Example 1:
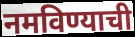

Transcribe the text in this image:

नमविण्याची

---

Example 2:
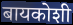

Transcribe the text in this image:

बायकोशी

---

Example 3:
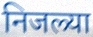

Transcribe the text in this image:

निजल्या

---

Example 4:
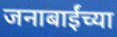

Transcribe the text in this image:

जनाबाईंच्या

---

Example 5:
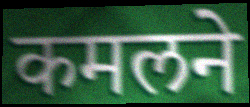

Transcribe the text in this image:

कमलने